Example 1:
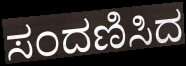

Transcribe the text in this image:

ಸಂದಣಿಸಿದ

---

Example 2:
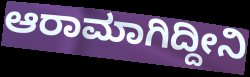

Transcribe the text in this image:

ಆರಾಮಾಗಿದ್ದೀನಿ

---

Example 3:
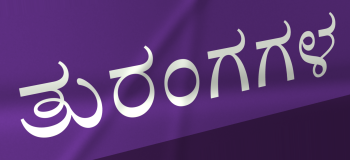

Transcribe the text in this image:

ತುರಂಗಗಳ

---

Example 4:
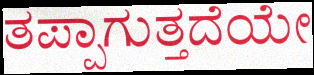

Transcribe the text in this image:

ತಪ್ಪಾಗುತ್ತದೆಯೇ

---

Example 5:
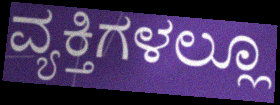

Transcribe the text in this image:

ವ್ಯಕ್ತಿಗಳಲ್ಲೂ